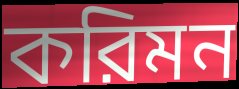
করিমন